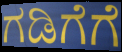
ಗಡಿಗೆಗೆ